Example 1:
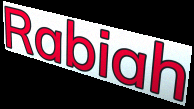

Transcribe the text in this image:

Rabiah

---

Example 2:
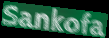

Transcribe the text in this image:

Sankofa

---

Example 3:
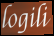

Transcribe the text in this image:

logili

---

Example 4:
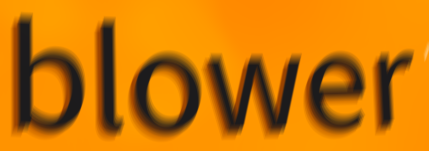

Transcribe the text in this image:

blower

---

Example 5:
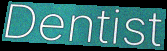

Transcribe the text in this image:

Dentist